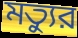
মত্যুর